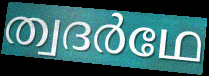
ത്വദർഥേ